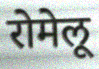
रोमेलू